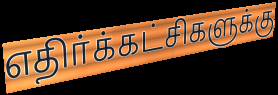
எதிர்க்கட்சிகளுக்கு